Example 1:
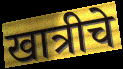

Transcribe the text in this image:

खात्रीचे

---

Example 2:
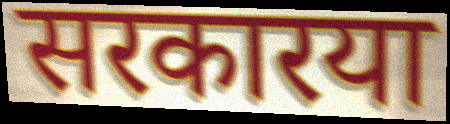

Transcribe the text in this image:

सरकारया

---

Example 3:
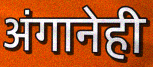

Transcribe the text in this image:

अंगानेही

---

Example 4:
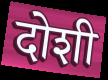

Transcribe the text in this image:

दोशी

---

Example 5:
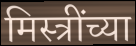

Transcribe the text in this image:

मिस्त्रींच्या